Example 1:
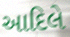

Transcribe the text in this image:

આદિલે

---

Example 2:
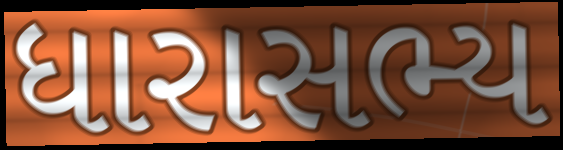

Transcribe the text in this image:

ધારાસભ્ય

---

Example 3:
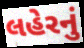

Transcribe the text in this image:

લહેરનું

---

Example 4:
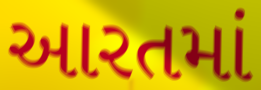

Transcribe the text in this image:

આરતમાં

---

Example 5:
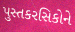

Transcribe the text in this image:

પુસ્તકરસિકોને